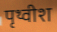
पृथ्वीश